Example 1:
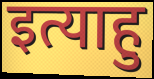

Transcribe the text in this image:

इत्याहु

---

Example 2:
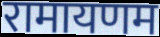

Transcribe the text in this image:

रामायणम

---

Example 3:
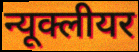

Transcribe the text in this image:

न्यूक्लीयर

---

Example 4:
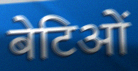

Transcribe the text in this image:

बेटिओं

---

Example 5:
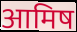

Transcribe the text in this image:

आमिष